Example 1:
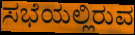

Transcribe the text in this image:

ಸಭೆಯಲ್ಲಿರುವ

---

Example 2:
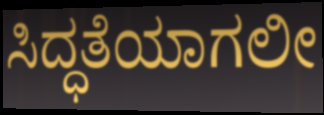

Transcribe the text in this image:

ಸಿದ್ಧತೆಯಾಗಲೀ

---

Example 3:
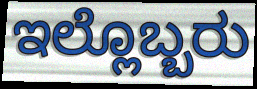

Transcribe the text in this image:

ಇಲ್ಲೊಬ್ಬರು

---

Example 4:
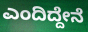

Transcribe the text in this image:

ಎಂದಿದ್ದೇನೆ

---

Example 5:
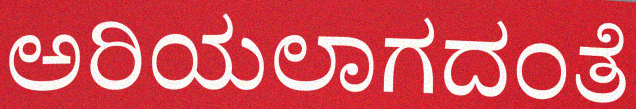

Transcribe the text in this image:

ಅರಿಯಲಾಗದಂತೆ